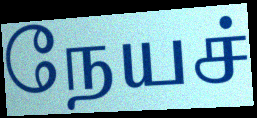
நேயச்